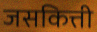
जसकित्ती